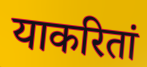
याकरितां